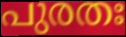
പുരതഃ